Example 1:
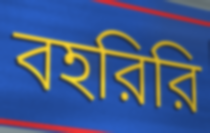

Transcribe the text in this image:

বহরিরি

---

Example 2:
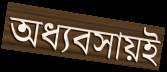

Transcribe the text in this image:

অধ্যবসায়ই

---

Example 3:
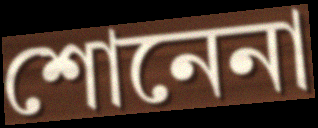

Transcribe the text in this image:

শোনেনা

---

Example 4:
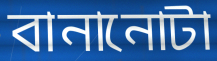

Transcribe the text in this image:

বানানোটা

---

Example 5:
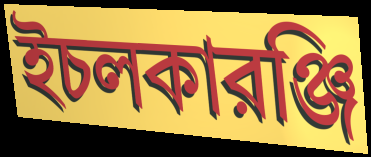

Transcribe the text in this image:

ইচলকারঞ্জি